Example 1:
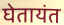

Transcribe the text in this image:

घेतायंत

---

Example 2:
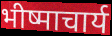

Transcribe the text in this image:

भीष्माचार्य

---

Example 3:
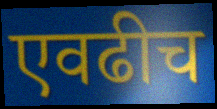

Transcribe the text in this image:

एवढीच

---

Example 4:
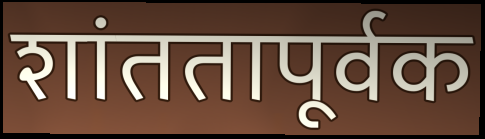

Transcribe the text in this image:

शांततापूर्वक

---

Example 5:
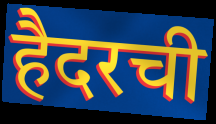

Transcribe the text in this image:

हैदरची